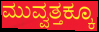
ಮುವ್ವತ್ತಕ್ಕೂ